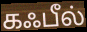
கஃபீல்